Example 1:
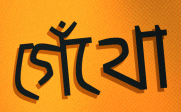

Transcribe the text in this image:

গেঁথো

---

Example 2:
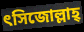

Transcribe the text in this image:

ৎসিজোল্লাহ্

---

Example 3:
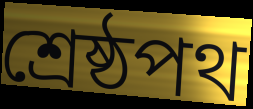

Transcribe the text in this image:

শ্রেষ্ঠপথ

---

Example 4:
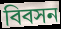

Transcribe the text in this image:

বিবসন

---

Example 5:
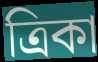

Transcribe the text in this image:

ত্রিকা